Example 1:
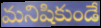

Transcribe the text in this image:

మనిషికుండే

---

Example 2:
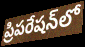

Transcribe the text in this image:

ప్రిపరేషన్‌లో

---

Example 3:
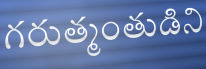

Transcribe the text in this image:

గరుత్మంతుడిని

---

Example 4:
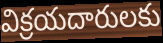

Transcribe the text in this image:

విక్రయదారులకు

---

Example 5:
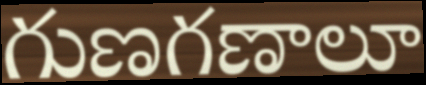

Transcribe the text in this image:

గుణగణాలూ